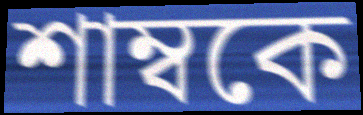
শাম্বকে